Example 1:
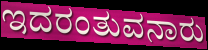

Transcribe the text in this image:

ಇದರಂತುವನಾರು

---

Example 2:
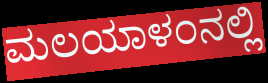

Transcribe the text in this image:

ಮಲಯಾಳಂನಲ್ಲಿ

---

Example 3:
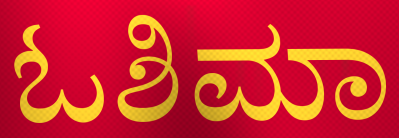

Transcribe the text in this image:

ಓಶಿಮಾ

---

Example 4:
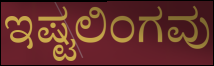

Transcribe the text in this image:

ಇಷ್ಟಲಿಂಗವು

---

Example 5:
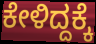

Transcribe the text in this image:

ಕೇಳಿದ್ದಕ್ಕೆ